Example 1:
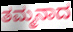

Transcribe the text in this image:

ತಮ್ಮನಾದ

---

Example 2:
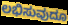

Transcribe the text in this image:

ಲಭಿಸುವುದೂ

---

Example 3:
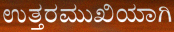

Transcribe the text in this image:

ಉತ್ತರಮುಖಿಯಾಗಿ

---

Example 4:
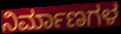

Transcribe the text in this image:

ನಿರ್ಮಾಣಗಳ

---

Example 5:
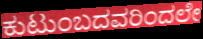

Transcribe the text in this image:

ಕುಟುಂಬದವರಿಂದಲೇ